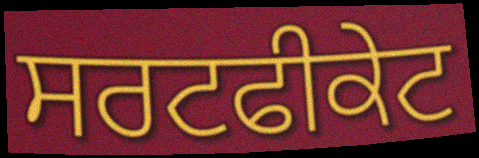
ਸਰਟਫੀਕੇਟ